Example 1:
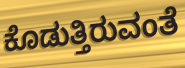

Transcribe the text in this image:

ಕೊಡುತ್ತಿರುವಂತೆ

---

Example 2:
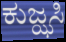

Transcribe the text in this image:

ಕುಜ್ಝಸಿ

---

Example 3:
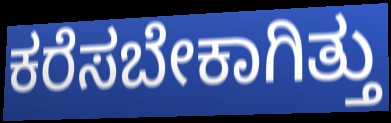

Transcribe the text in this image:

ಕರೆಸಬೇಕಾಗಿತ್ತು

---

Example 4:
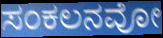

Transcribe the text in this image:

ಸಂಕಲನವೋ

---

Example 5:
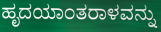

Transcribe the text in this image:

ಹೃದಯಾಂತರಾಳವನ್ನು